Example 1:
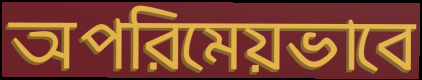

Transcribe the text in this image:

অপরিমেয়ভাবে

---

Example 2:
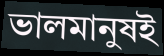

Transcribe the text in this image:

ভালমানুষই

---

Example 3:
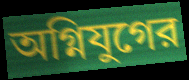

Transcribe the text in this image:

অগ্নিযুগের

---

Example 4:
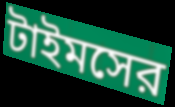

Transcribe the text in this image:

টাইমসের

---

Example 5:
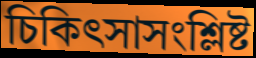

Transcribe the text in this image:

চিকিৎসাসংশ্লিষ্ট